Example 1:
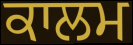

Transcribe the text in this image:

ਕਾਲਮ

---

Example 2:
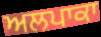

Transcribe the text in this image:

ਅਲਪਾਕਾ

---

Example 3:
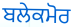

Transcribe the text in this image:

ਬਲੇਕਮੋਰ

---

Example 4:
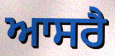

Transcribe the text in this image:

ਆਸਰੈ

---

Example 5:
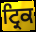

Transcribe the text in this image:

ਟ੍ਰਿਕ